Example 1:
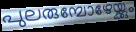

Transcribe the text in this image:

പുലരുമ്പോഴേയ്ക്കും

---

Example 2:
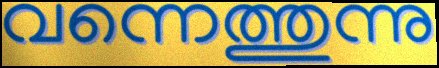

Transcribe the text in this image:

വന്നെത്തുന്നു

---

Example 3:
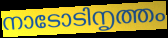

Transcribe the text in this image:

നാടോടിനൃത്തം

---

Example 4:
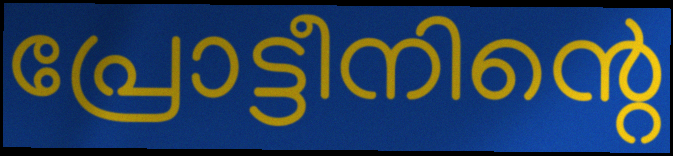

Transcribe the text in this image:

പ്രോട്ടീനിന്റെ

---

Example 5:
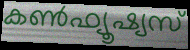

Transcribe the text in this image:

കൺഫ്യൂഷ്യസ്